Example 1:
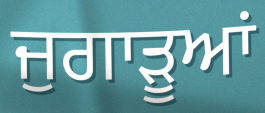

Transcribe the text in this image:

ਜੁਗਾੜੂਆਂ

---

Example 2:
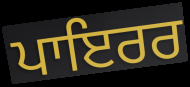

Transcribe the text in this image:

ਪਾਇਰਰ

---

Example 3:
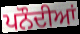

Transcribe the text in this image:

ਪਨੌਦੀਆਂ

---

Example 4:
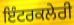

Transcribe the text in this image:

ਇੰਟਰਕਲੇਰੀ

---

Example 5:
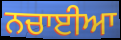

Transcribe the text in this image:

ਨਚਾਈਆ